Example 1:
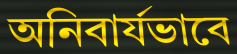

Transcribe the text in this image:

অনিবার্যভাবে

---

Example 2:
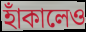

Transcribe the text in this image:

হাঁকালেও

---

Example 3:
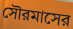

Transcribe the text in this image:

সৌরমাসের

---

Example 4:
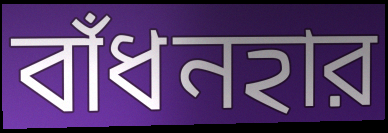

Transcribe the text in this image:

বাঁধনহার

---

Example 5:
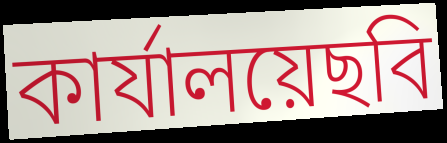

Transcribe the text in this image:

কার্যালয়েছবি